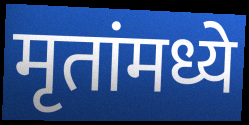
मृतांमध्ये